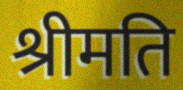
श्रीमति